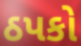
ઠપકો